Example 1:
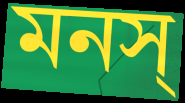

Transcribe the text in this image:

মনস্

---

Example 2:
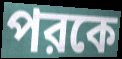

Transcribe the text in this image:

পরকে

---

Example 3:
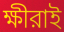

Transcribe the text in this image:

ক্ষীরাই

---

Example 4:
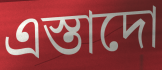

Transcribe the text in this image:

এস্তাদো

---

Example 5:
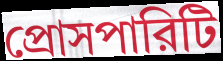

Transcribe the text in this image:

প্রোসপারিটি